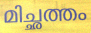
മിച്ഛത്തം